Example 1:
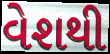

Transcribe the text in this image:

વેશથી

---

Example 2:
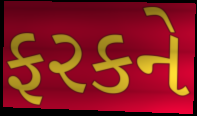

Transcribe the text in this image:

ફરકને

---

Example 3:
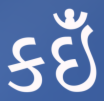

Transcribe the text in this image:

કઇઁં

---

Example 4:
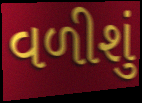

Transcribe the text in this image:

વળીશું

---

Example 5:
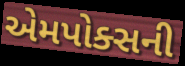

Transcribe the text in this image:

એમપોક્સની